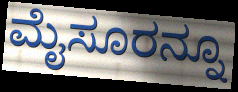
ಮೈಸೂರನ್ನೂ